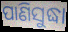
ପାଣିସୁଦ୍ଧା